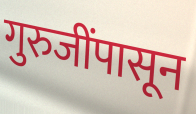
गुरुजींपासून